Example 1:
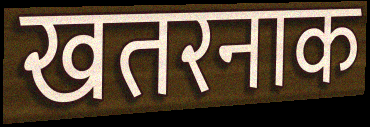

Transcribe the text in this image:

खतरनाक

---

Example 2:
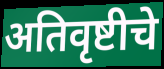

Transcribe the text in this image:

अतिवृष्टीचे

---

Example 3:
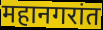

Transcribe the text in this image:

महानगरांत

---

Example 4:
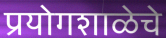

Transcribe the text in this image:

प्रयोगशाळेचे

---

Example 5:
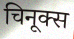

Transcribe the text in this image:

चिनूक्स